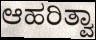
ಆಹರಿತ್ವಾ